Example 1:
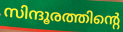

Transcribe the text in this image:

സിന്ദൂരത്തിന്റെ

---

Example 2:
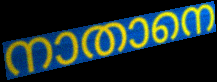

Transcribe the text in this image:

നാതാനെ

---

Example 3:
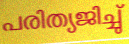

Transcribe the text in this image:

പരിത്യജിച്ചു്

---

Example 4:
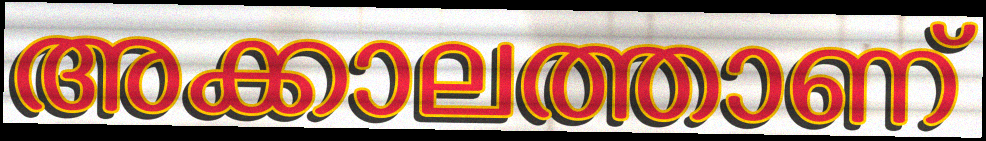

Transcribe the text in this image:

അക്കാലത്താണ്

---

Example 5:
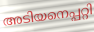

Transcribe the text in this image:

അടിയനെപ്പറ്റി